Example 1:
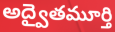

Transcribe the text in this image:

అద్వైతమూర్తి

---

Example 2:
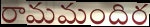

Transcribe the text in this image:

రామమందిర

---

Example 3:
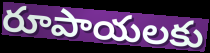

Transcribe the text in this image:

రూపాయలకు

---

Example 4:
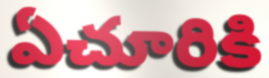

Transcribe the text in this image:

ఏచూరికి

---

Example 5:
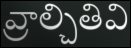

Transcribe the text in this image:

వ్రాల్చితివి